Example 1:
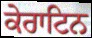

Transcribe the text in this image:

ਕੇਰਾਟਿਨ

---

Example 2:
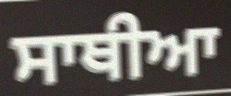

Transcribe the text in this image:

ਸਾਥੀਆ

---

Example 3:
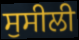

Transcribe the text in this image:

ਸੁਸੀਲੀ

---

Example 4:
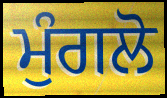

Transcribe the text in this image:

ਮੁੰਗਲੋ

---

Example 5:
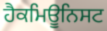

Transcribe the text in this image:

ਹੈਕਮਿਊਨਿਸਟ